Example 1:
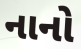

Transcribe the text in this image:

નાનો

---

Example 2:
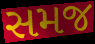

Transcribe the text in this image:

સમજ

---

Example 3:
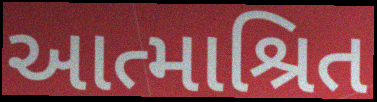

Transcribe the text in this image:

આત્માશ્રિત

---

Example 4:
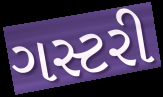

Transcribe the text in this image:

ગસ્ટરી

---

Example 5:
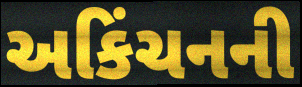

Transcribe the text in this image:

અકિંચનની